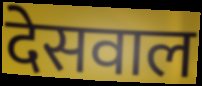
देसवाल